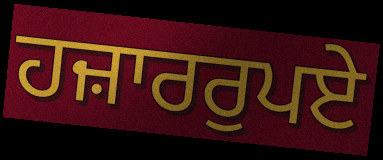
ਹਜ਼ਾਰਰੁਪਏ